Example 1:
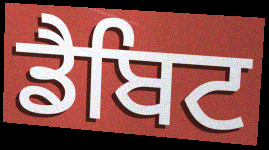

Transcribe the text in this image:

ਡੈਬਿਟ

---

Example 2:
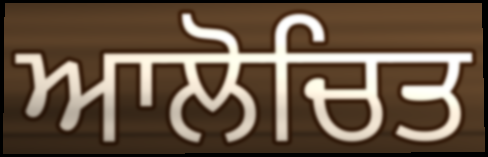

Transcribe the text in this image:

ਆਲੋਚਿਤ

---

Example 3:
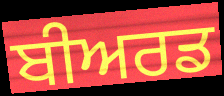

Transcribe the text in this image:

ਬੀਅਰਡ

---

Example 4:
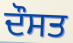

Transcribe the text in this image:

ਦੌਸਤ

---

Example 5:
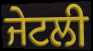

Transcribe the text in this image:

ਜੇਟਲੀ